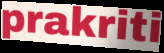
prakriti